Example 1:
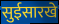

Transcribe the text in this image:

सुईसारखे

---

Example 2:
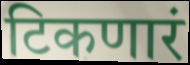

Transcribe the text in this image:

टिकणारं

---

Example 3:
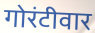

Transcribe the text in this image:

गोरंटीवार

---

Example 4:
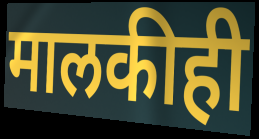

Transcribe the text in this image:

मालकीही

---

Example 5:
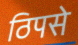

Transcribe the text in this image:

ठिपसे